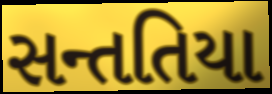
સન્તતિયા